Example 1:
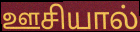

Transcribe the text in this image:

ஊசியால்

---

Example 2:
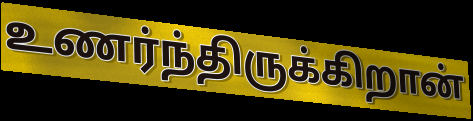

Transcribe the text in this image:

உணர்ந்திருக்கிறான்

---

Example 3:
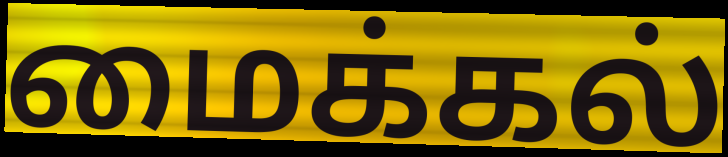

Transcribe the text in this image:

மைக்கல்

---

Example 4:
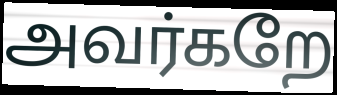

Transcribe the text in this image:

அவர்கறே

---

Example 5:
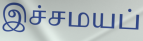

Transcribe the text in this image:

இச்சமயப்